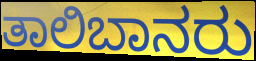
ತಾಲಿಬಾನರು